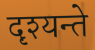
दृश्यन्ते